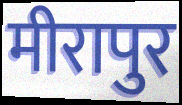
मीरापुर